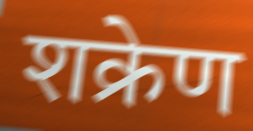
शक्रेण